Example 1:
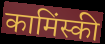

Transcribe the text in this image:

कामिंस्की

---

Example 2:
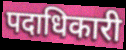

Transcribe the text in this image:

पदाधिकारी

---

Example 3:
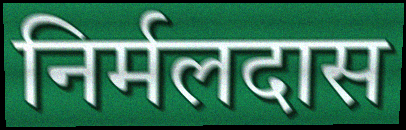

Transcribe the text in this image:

निर्मलदास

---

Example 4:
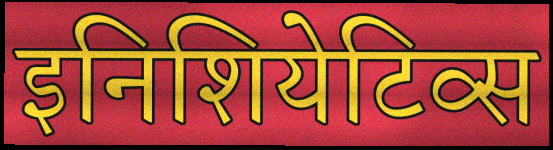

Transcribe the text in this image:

इनिशियेटिव्स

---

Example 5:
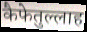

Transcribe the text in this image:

कैफेतुल्लाह